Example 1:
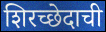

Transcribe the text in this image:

शिरच्छेदाची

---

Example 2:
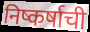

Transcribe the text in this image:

निष्कर्षाची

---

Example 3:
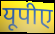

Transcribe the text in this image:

यूपीए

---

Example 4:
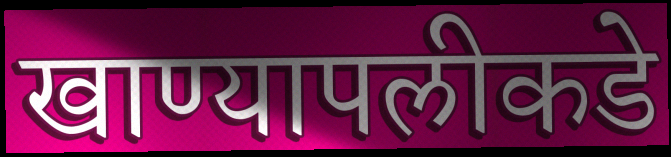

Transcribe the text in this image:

खाण्यापलीकडे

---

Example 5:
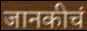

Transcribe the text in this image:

जानकीचं